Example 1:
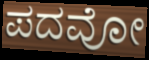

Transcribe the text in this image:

ಪದವೋ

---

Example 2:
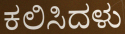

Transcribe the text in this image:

ಕಲಿಸಿದಳು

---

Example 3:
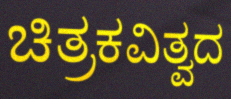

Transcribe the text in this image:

ಚಿತ್ರಕವಿತ್ವದ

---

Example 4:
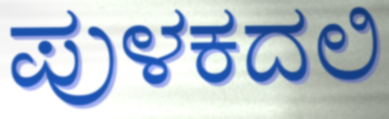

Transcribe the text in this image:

ಪುಳಕದಲಿ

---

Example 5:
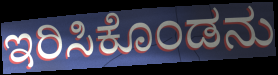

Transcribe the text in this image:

ಇರಿಸಿಕೊಂಡನು